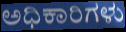
ಅಧಿಕಾರಿಗಳು